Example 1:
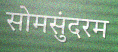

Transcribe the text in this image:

सोमसुंदरम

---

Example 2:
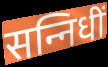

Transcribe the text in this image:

सन्निधीं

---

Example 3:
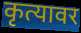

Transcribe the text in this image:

कृत्यावर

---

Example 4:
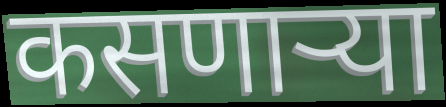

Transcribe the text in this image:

कसणाऱ्या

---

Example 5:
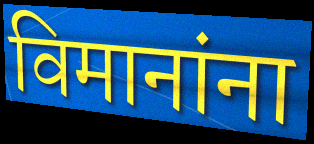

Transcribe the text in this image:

विमानांना